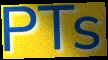
PTs